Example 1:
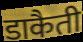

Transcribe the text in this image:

डाकैती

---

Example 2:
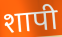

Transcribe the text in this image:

शापी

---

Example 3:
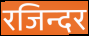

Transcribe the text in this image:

रजिन्दर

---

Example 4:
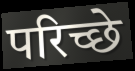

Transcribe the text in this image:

परिच्छे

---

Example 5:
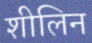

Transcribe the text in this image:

शीलिन